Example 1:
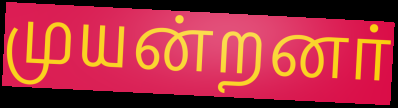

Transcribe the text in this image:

முயன்றனர்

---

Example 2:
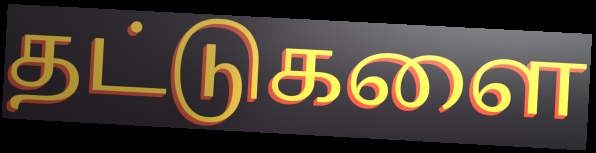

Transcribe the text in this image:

தட்டுகளை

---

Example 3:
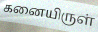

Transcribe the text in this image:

கனையிருள்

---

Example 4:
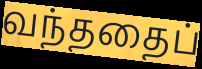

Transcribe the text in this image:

வந்ததைப்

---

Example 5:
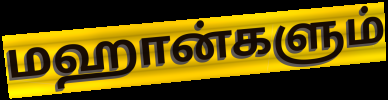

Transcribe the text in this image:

மஹான்களும்